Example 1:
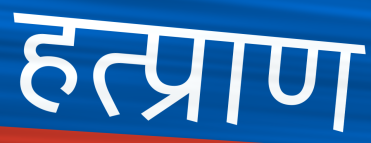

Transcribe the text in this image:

हत्प्राण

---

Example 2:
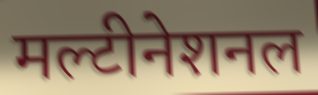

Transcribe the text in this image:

मल्टीनेशनल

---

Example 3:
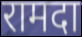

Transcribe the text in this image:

रामदा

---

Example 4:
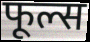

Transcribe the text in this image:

फूल्स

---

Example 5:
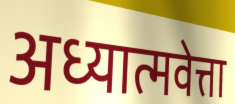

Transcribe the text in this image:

अध्यात्मवेत्ता